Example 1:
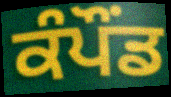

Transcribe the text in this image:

ਕੰਪੌਂਡ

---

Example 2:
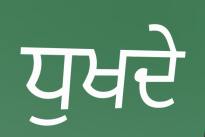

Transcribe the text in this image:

ਧੁਖਦੇ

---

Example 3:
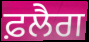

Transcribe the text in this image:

ਫ਼ਲੈਗ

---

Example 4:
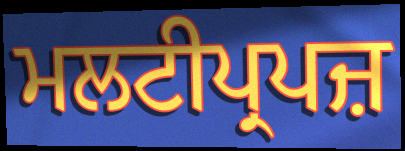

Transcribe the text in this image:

ਮਲਟੀਪ੍ਰਪਜ਼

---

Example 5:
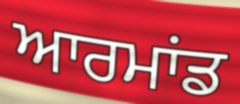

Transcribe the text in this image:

ਆਰਮਾਂਡ